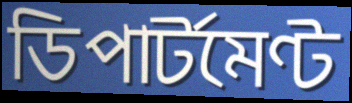
ডিপাৰ্টমেণ্ট